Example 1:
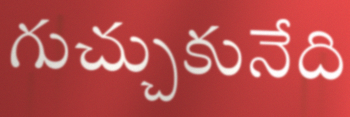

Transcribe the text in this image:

గుచ్చుకునేది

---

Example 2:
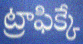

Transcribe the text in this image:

ట్రాఫిక్కే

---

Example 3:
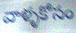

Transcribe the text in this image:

వాళ్ళకోసం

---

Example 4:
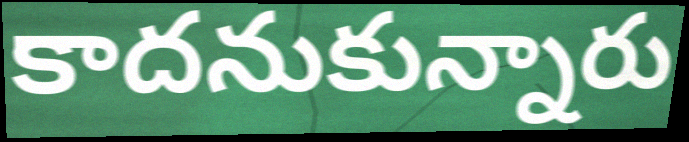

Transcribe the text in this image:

కాదనుకున్నారు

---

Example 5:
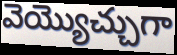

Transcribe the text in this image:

వెయ్యొచ్చుగా